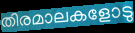
തിരമാലകളോടു